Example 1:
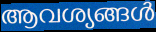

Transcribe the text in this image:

ആവശ്യങ്ങൾ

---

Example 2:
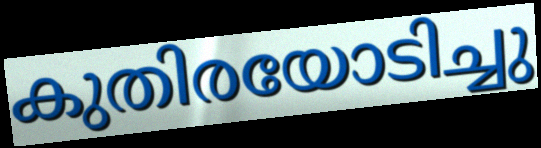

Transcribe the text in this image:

കുതിരയോടിച്ചു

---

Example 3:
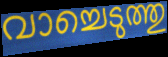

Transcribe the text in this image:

വാച്ചെടുത്തു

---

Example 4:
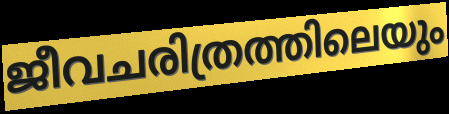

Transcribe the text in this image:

ജീവചരിത്രത്തിലെയും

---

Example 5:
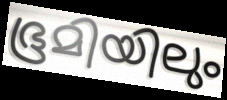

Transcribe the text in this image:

ഭൂമിയിലും